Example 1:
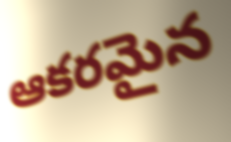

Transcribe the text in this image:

ఆకరమైన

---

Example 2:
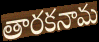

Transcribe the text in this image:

తారకనామ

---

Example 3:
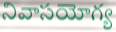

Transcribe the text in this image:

నివాసయోగ్య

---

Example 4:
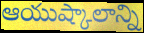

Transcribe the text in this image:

ఆయుష్కాలాన్ని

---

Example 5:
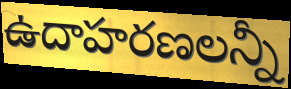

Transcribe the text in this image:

ఉదాహరణలన్నీ